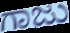
ಗಾಜು